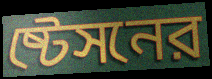
ষ্টেসনের